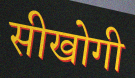
सीखोगी